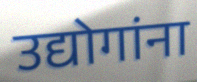
उद्योगांना